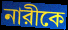
নারীকে